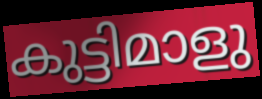
കുട്ടിമാളു